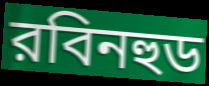
রবিনহুড